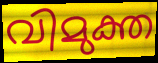
വിമുക്ത